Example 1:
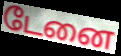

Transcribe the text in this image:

டேனை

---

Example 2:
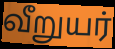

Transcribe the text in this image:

வீறுயர்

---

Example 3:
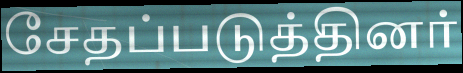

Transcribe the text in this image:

சேதப்படுத்தினர்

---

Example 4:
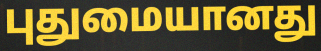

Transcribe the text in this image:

புதுமையானது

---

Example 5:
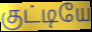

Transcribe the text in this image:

குட்டியே